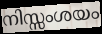
നിസ്സംശയം